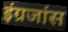
इंग्रजांस